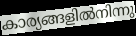
കാര്യങ്ങളിൽനിന്നു